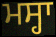
ਮਸ੍ਹਾ